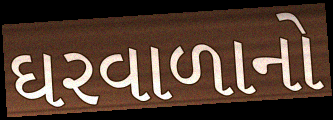
ઘરવાળાનો